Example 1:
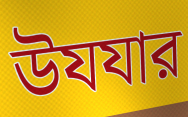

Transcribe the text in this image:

উযযার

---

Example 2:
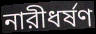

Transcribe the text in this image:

নারীধর্ষণ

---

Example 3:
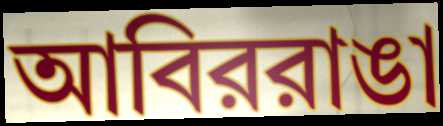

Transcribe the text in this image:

আবিররাঙা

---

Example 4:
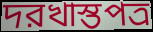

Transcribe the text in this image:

দরখাস্তপত্র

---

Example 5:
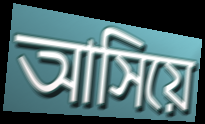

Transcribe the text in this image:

আসিয়ে